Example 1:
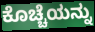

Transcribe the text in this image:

ಕೊಚ್ಚೆಯನ್ನು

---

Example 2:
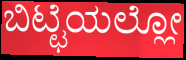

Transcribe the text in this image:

ಬಿಟ್ಟೆಯಲ್ಲೋ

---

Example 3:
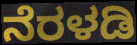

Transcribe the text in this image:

ನೆರಳಡಿ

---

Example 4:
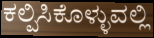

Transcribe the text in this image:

ಕಲ್ಪಿಸಿಕೊಳ್ಳುವಲ್ಲಿ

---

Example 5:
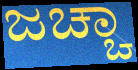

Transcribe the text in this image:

ಜಚ್ಚಾ